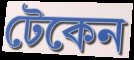
টেকেন